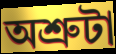
অশ্রুটা